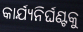
କାର୍ଯ୍ୟନିର୍ଘଣ୍ଟକୁ